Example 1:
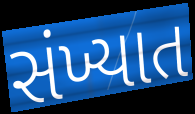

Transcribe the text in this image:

સંખ્યાત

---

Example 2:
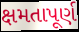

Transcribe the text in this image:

ક્ષમતાપૂર્ણ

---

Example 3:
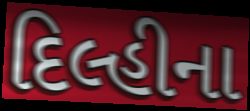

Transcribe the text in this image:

દિલ્હીના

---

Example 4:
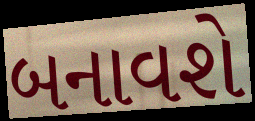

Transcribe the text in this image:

બનાવશે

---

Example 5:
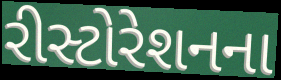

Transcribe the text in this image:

રીસ્ટોરેશનના